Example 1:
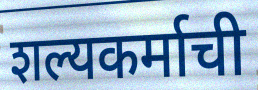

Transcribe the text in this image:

शल्यकर्माची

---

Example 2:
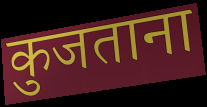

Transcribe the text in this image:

कुजताना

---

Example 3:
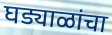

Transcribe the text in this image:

घड्याळांचा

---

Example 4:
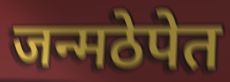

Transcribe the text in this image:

जन्मठेपेत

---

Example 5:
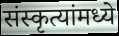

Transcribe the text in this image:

संस्कृत्यांमध्ये